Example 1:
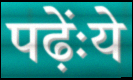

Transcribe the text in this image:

पढ़ेंःये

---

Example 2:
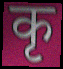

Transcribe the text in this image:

कृ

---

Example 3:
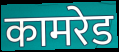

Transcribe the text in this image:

कामरेड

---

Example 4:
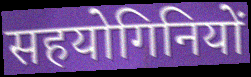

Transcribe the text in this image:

सहयोगिनियों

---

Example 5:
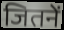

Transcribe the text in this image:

जितनें